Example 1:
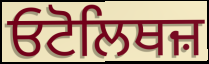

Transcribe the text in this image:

ਓਟੋਲਿਥਜ਼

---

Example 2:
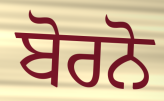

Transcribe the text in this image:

ਬੋਰਨੋ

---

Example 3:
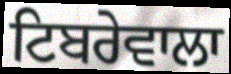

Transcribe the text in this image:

ਟਿਬਰੇਵਾਲਾ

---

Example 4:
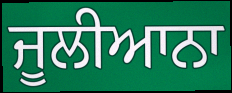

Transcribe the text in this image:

ਜੂਲੀਆਨਾ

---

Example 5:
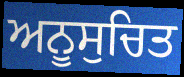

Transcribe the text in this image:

ਅਨੂਸੁਚਿਤ